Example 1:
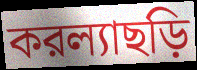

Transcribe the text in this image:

করল্যাছড়ি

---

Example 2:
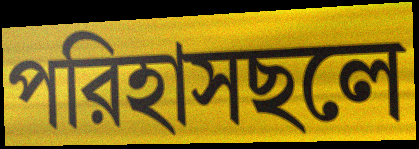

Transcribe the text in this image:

পরিহাসছলে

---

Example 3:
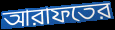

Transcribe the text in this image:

আরাফতের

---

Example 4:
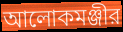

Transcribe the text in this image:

আলোকমঞ্জীর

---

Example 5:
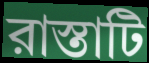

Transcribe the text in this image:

রাস্তাটি